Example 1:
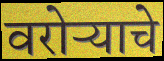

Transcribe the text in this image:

वरोऱ्याचे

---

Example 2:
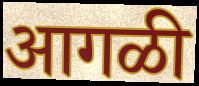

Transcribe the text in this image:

आगळी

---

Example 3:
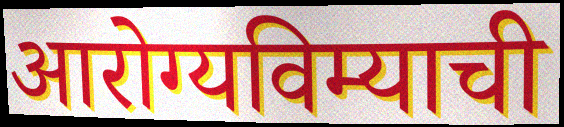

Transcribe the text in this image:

आरोग्यविम्याची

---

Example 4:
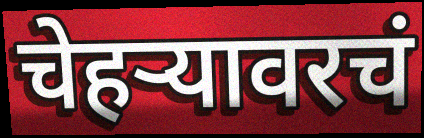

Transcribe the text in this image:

चेहऱ्यावरचं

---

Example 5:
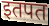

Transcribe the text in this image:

इतपत